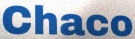
Chaco